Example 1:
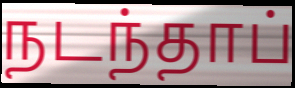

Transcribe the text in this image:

நடந்தாப்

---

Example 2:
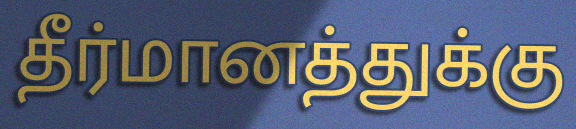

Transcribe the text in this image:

தீர்மானத்துக்கு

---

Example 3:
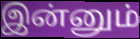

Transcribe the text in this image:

இன்னும்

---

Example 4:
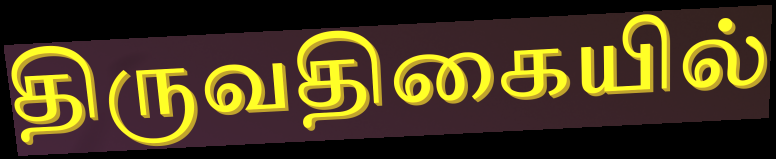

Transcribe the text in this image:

திருவதிகையில்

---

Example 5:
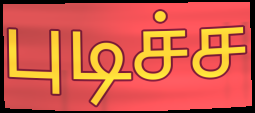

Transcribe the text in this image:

புடிச்ச